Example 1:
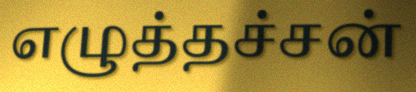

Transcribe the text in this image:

எழுத்தச்சன்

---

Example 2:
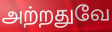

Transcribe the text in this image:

அற்றதுவே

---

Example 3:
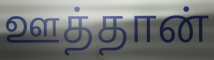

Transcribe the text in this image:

ஊத்தான்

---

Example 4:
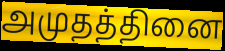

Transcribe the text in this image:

அமுதத்தினை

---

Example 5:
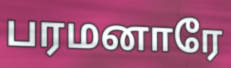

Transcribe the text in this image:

பரமனாரே